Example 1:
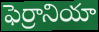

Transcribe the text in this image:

ఫెర్రానియా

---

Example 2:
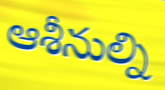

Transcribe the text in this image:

ఆశీనుల్ని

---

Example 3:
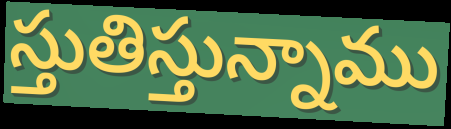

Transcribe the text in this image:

స్తుతిస్తున్నాము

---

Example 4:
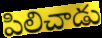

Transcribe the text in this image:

పిలిచాడు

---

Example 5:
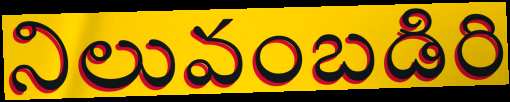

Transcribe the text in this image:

నిలువంబడిరి